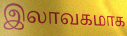
இலாவகமாக